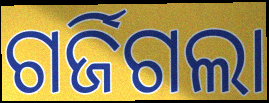
ଗର୍ଜିଗଲା